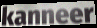
kanneer